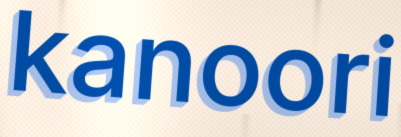
kanoori